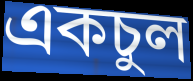
একচুল